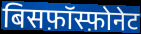
बिसफ़ॉस्फ़ोनेट